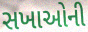
સખાઓની